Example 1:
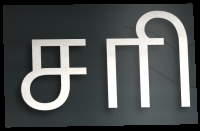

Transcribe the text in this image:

சரி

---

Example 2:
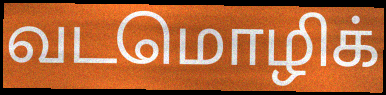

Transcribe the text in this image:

வடமொழிக்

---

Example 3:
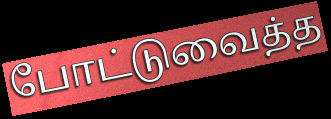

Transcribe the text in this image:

போட்டுவைத்த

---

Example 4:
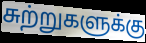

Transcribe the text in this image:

சுற்றுகளுக்கு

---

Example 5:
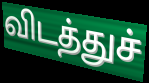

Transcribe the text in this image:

விடத்துச்